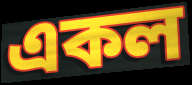
একল